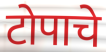
टोपाचे